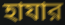
হাযার